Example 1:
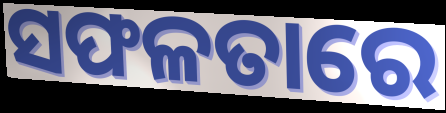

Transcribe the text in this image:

ସଫଳତାରେ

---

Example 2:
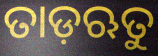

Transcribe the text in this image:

ତାଡ଼ଋତୁ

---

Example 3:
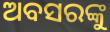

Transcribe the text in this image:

ଅବସରଙ୍କୁ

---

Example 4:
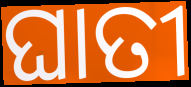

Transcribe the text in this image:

ଘାତୀ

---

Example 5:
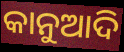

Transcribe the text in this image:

କାନୁଆଦି